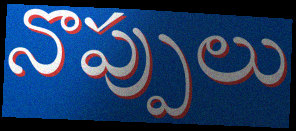
నొప్పులు